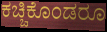
ಕಚ್ಚಿಕೊಂಡರೂ